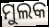
ମୁଲକ